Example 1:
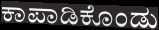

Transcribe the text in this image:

ಕಾಪಾಡಿಕೊಂಡು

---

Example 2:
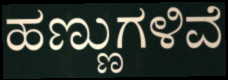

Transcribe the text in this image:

ಹಣ್ಣುಗಳಿವೆ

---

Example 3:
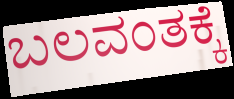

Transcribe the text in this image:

ಬಲವಂತಕ್ಕೆ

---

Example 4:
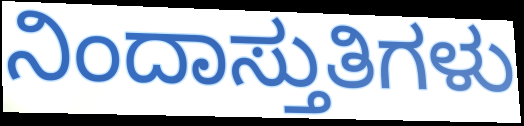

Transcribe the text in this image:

ನಿಂದಾಸ್ತುತಿಗಳು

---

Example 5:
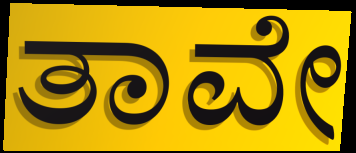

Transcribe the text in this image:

ತಾವೇ